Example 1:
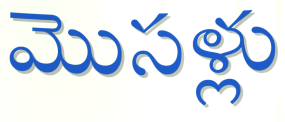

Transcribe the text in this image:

మొసళ్లు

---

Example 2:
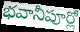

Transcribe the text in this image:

భవానీపూర్లో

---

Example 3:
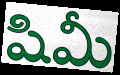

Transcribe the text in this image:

షిమీ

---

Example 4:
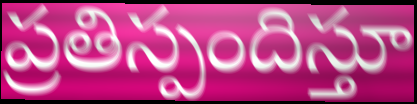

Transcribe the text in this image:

ప్రతిస్పందిస్తూ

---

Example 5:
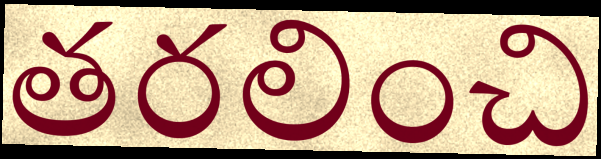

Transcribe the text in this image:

తరలించి